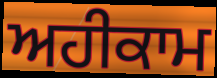
ਅਹੀਕਾਮ